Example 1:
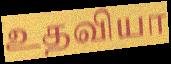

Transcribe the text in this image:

உதவியா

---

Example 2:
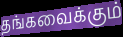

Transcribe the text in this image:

தங்கவைக்கும்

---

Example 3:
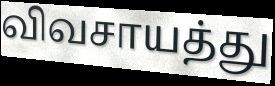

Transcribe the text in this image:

விவசாயத்து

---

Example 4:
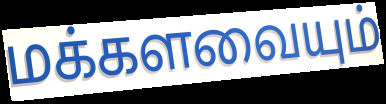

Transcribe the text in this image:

மக்களவையும்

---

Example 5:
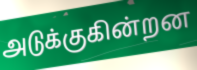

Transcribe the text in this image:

அடுக்குகின்றன